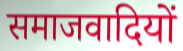
समाजवादियों